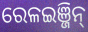
ରେଳଇଞ୍ଜିନ୍